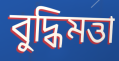
বুদ্ধিমত্তা